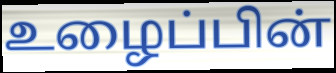
உழைப்பின்